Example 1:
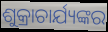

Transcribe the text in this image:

ଶୁକ୍ରାଚାର୍ଯ୍ୟଙ୍କର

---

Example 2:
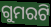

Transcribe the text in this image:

ଗୁମରଟି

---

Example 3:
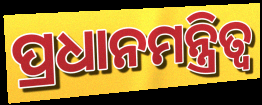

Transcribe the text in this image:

ପ୍ରଧାନମନ୍ତ୍ରିତ୍ଵ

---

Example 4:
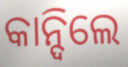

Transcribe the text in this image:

କାନ୍ଦିଲେ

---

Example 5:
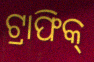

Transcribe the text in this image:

ଟ୍ରାଫିକ୍